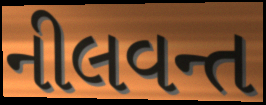
નીલવન્ત